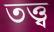
তত্ত্ব